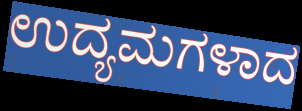
ಉದ್ಯಮಗಳಾದ